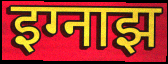
इग्नाझ